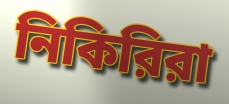
নিকিরিরা